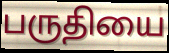
பருதியை